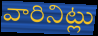
వారినిట్లు